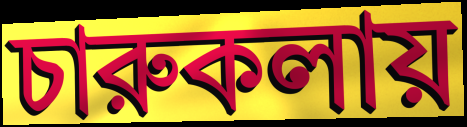
চারুকলায়